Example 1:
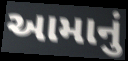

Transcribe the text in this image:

આમાનું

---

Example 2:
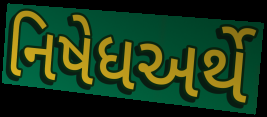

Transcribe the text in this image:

નિષેધઅર્થે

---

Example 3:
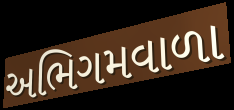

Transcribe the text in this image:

અભિગમવાળા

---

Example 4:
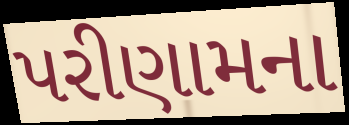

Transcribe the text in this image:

પરીણામના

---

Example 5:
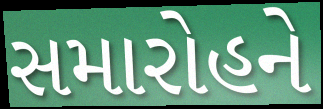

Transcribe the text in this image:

સમારોહને